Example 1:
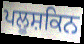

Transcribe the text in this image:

ਪਲੂਸ਼ਕਿਨ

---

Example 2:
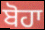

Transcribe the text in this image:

ਬੋਹਾ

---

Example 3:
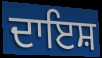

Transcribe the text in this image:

ਦਾਇਸ਼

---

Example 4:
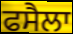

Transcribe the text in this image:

ਫਸੈਲਾ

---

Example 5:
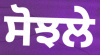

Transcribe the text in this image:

ਸੋਝਲੇ